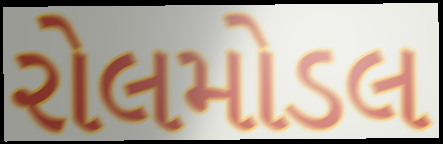
રોલમોડલ